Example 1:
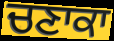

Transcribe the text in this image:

ਚਣਾਕਾ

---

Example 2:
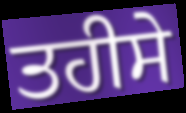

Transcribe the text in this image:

ਤਹੀਸੇ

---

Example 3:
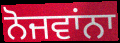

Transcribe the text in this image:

ਨੋਜਵਾਂਨਾ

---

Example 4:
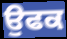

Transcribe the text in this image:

ਉਫਕ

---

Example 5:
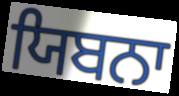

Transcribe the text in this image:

ਯਿਬਨਾ